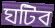
ঘটিব